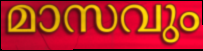
മാസവും